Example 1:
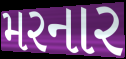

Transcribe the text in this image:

મરનાર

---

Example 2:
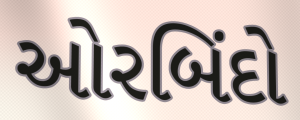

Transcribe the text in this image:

ઓરબિંદો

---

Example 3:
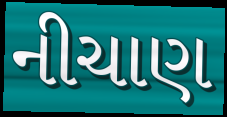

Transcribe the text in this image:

નીચાણ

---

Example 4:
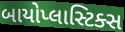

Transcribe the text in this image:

બાયોપ્લાસ્ટિક્સ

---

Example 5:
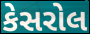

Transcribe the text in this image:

કેસરોલ